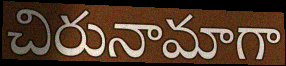
చిరునామాగా